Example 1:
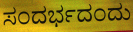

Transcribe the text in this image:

ಸಂದರ್ಭದಂದು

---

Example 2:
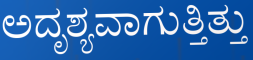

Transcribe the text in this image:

ಅದೃಶ್ಯವಾಗುತ್ತಿತ್ತು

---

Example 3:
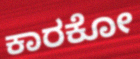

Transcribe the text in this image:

ಕಾರಕೋ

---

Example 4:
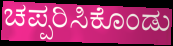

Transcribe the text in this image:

ಚಪ್ಪರಿಸಿಕೊಂಡು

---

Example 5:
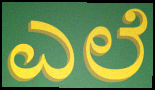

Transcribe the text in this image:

ಎಲೆ